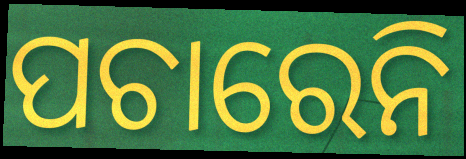
ପଚାରେନି